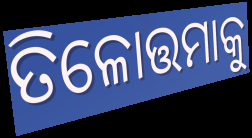
ତିଳୋତ୍ତମାକୁ